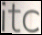
itc